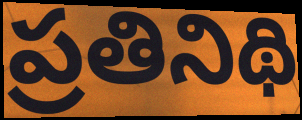
ప్రతినిథి